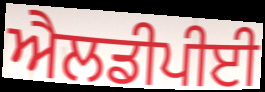
ਐਲਡੀਪੀਈ